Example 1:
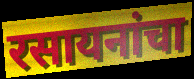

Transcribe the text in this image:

रसायनांचा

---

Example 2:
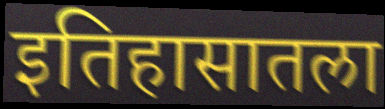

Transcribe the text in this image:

इतिहासातला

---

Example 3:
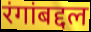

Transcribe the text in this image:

रंगांबद्दल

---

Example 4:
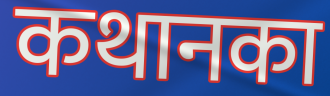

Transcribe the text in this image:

कथानका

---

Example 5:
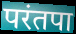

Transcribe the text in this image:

परंतपा